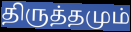
திருத்தமும்